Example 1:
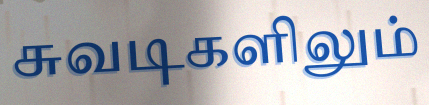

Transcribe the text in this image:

சுவடிகளிலும்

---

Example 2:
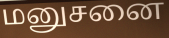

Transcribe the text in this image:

மனுசனை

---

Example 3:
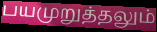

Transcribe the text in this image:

பயமுறுத்தலும்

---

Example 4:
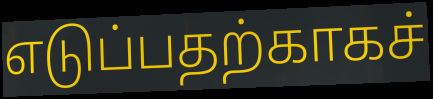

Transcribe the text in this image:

எடுப்பதற்காகச்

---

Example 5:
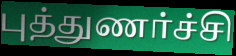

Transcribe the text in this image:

புத்துணர்ச்சி